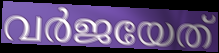
വർജയേത്